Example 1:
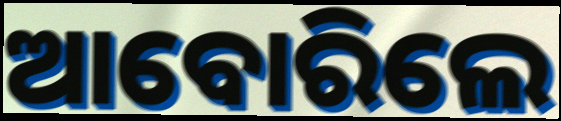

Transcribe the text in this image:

ଆବୋରିଲେ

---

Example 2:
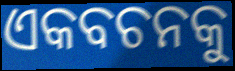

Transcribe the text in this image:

ଏକବଚନକୁ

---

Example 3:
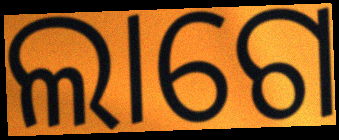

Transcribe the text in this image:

ଲାଗେ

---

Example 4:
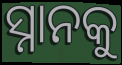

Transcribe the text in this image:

ସ୍ନାନକୁ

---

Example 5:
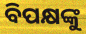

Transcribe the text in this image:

ବିପକ୍ଷଙ୍କୁ